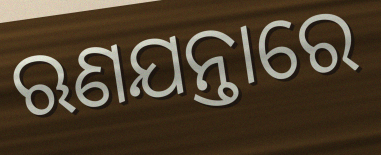
ଋଣଯନ୍ତାରେ